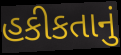
હકીકતાનું